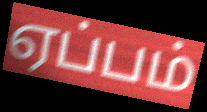
ஏப்பம்